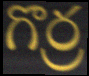
గొర్ర